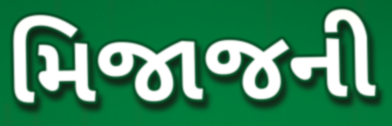
મિજાજની